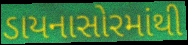
ડાયનાસોરમાંથી